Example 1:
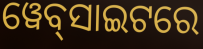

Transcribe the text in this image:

ୱେବ୍‍ସାଇଟରେ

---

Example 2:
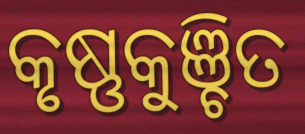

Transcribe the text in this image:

କୃଷ୍ଣକୁଞ୍ଚିତ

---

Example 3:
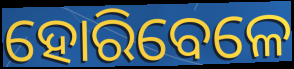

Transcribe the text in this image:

ହୋରିବେଳେ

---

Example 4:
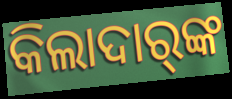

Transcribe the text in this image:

କିଲାଦାର୍‍ଙ୍କ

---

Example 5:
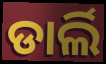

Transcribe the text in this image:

ଡାର୍ଲି